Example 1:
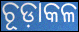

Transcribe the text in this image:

ଚୂଡ଼ାକଳ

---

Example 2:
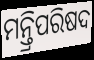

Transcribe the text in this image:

ମନ୍ତ୍ରିପରିଷଦ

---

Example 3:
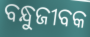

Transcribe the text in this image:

ବନ୍ଧୁଜୀବକ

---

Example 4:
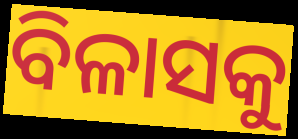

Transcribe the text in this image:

ବିଳାସକୁ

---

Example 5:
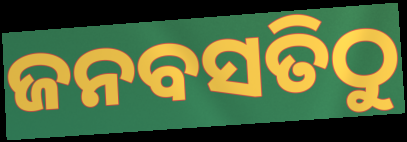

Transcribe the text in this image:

ଜନବସତିଠୁ